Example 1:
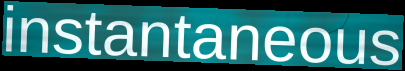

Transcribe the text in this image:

instantaneous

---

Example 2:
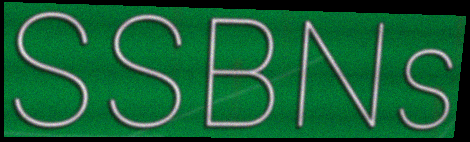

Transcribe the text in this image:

SSBNs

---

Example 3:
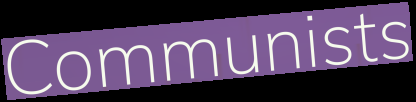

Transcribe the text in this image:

Communists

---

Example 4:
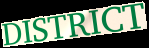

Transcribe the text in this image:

DISTRICT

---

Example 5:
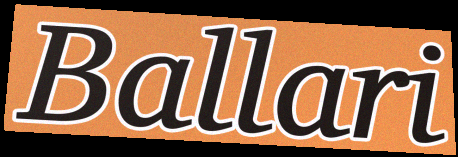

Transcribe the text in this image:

Ballari